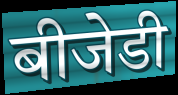
बीजेडी